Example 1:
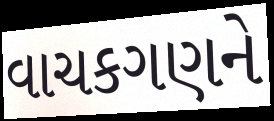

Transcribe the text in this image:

વાચકગણને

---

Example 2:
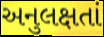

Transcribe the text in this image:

અનુલક્ષતાં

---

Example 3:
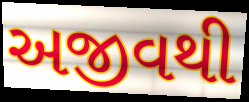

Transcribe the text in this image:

અજીવથી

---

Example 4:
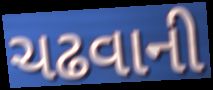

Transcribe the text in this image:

ચઢવાની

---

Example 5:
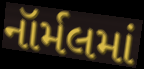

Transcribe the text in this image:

નૉર્મલમાં